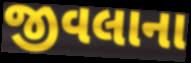
જીવલાના